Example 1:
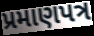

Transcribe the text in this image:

પ્રમાણપત્ર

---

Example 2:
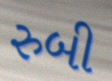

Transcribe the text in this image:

રુબી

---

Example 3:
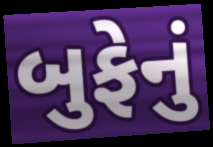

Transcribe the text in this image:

બુફેનું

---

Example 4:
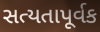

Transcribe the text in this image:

સત્યતાપૂર્વક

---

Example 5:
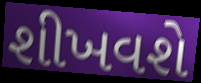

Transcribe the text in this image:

શીખવશે